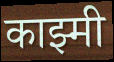
काझ्मी